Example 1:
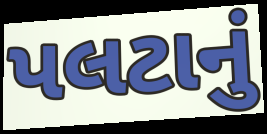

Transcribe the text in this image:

પલટાનું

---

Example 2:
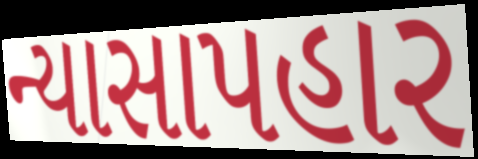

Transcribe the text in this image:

ન્યાસાપહાર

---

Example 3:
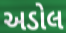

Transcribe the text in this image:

અડોલ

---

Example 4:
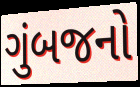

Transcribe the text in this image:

ગુંબજનો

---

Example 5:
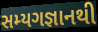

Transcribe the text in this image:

સમ્યગજ્ઞાનથી